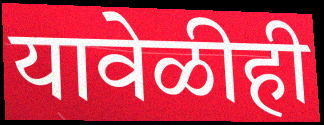
यावेळीही